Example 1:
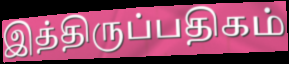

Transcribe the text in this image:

இத்திருப்பதிகம்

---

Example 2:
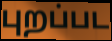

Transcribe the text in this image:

புறப்பட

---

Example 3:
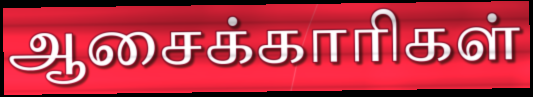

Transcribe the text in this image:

ஆசைக்காரிகள்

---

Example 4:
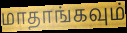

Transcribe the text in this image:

மாதாங்கவும்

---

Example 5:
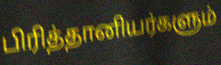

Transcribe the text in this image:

பிரித்தானியர்களும்